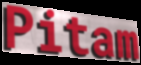
Pitam